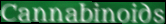
Cannabinoids